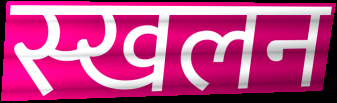
स्‍खलन